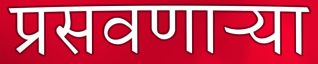
प्रसवणाऱ्या